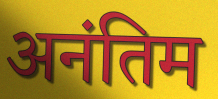
अनंतिम